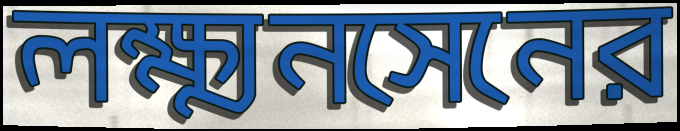
লক্ষ্মনসেনের